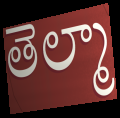
తెల్మా